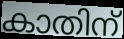
കാതിന്